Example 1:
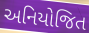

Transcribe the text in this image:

અનિયોજિત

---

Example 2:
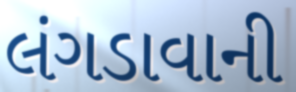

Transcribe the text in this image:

લંગડાવાની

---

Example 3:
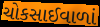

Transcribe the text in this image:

ચોકસાઈવાળાં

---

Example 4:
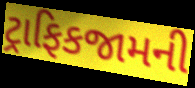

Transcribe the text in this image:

ટ્રાફિકજામની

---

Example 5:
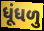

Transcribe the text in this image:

ધૂંધળુ